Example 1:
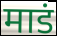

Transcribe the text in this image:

माडं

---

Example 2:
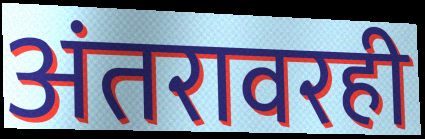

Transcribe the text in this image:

अंतरावरही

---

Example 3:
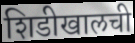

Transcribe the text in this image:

शिडीखालची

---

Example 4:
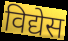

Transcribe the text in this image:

विद्येस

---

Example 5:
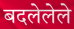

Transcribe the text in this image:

बदलेलेले